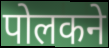
पोलकने